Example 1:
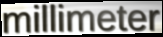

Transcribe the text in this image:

millimeter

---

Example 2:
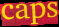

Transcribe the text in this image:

caps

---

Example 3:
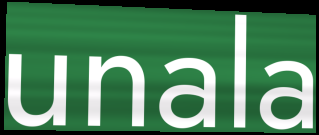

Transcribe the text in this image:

unala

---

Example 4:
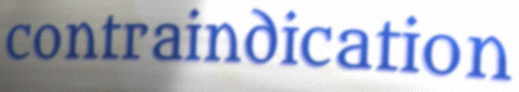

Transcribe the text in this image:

contraindication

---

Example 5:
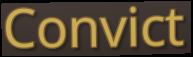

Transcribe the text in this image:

Convict